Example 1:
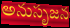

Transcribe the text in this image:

అనుసృజన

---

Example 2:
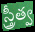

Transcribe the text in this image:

స్త్రీత్వ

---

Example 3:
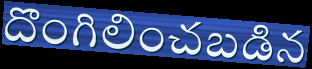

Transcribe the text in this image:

దొంగిలించబడిన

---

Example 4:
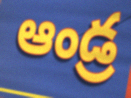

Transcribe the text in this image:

ఆండ్ర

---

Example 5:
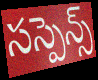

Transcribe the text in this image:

సస్పెన్స్